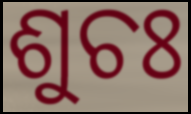
ଶୁଚଃ